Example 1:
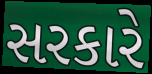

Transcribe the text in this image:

સરકારે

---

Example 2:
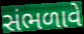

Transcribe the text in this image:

સંભળાવે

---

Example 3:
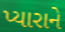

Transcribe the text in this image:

પ્યારાને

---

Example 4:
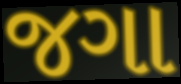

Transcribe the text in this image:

જગા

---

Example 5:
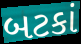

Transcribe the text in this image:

બટકાં